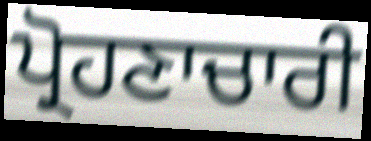
ਪ੍ਰੋਹਣਾਚਾਰੀ